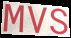
MVS